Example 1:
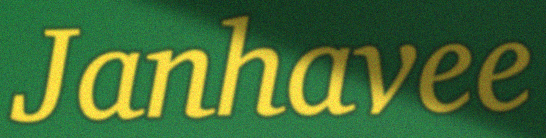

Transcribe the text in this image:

Janhavee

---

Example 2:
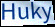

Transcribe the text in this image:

Huky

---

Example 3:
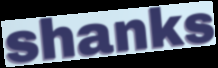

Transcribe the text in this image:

shanks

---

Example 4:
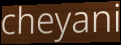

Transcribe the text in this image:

cheyani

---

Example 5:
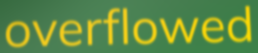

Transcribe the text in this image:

overflowed